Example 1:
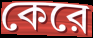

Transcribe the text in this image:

কেরে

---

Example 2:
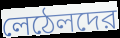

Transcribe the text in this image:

লেঠেলদের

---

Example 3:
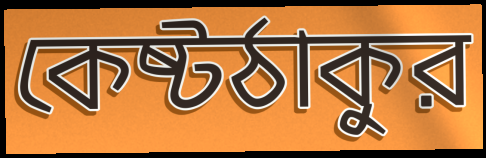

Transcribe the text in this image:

কেষ্টঠাকুর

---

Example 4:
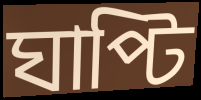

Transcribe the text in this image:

ঘাপ্টি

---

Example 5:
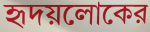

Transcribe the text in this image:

হৃদয়লোকের